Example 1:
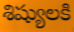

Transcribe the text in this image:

శిష్యులకి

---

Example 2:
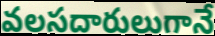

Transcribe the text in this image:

వలసదారులుగానే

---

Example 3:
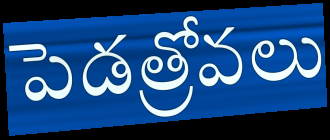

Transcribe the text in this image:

పెడత్రోవలు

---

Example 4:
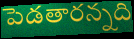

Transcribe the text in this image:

పెడతారన్నది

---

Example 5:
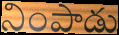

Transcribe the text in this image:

నింపాడు